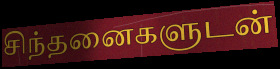
சிந்தனைகளுடன்